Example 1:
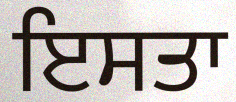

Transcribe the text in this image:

ਇਸਤਾ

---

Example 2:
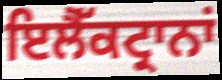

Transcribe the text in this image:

ਇਲੈੱਕਟ੍ਰਾਨਾਂ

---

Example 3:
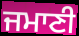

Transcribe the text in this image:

ਜਮਾਣੀ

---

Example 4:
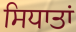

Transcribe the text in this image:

ਸਿਧਾਤਾਂ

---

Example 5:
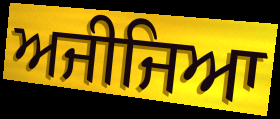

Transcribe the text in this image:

ਅਜੀਜਿਆ